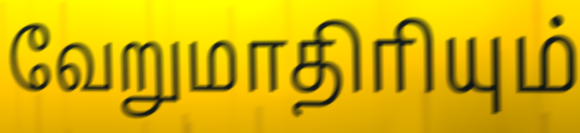
வேறுமாதிரியும்